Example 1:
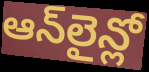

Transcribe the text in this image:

ఆన్‌లైన్లో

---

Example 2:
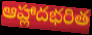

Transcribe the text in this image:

ఆహ్లాదభరిత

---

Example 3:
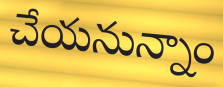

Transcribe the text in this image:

చేయనున్నాం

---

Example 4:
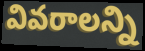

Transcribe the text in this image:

వివరాలన్ని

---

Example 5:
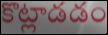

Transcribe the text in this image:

కొట్లాడడం